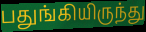
பதுங்கியிருந்து